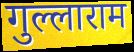
गुल्लाराम